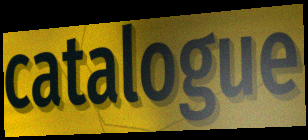
catalogue